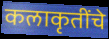
कलाकृतींचे